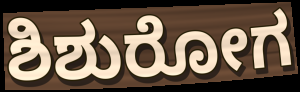
ಶಿಶುರೋಗ